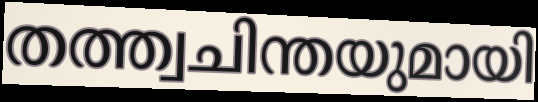
തത്ത്വചിന്തയുമായി